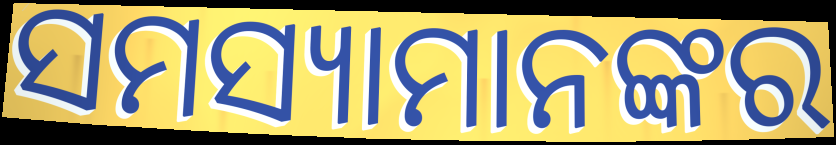
ସମସ୍ୟାମାନଙ୍କର